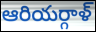
ఆరియర్గాళ్